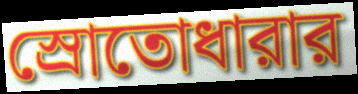
স্রোতোধারার